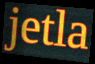
jetla